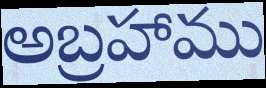
అబ్రహాము